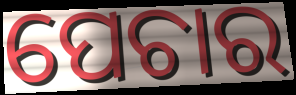
ପେଚାର